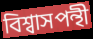
বিশ্বাসপন্থী